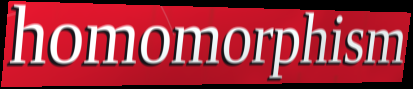
homomorphism